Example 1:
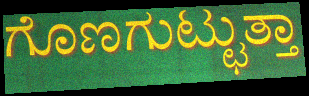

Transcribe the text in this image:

ಗೊಣಗುಟ್ಟುತ್ತಾ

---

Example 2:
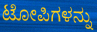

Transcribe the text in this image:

ಟೋಪಿಗಳನ್ನು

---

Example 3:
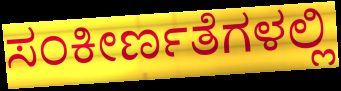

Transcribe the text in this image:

ಸಂಕೀರ್ಣತೆಗಳಲ್ಲಿ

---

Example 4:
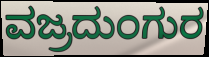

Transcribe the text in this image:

ವಜ್ರದುಂಗುರ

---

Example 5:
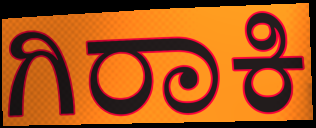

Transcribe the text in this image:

ಗಿರಾಕಿ